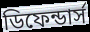
ডিফেন্ডার্স